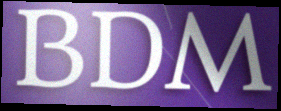
BDM